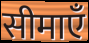
सीमाएँ